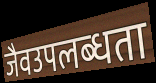
जैवउपलब्धता